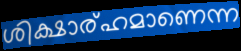
ശിക്ഷാര്ഹമാണെന്ന